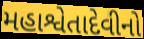
મહાશ્વેતાદેવીનો